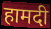
हामदी